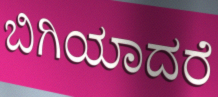
ಬಿಗಿಯಾದರೆ